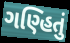
ગણ્હિતું